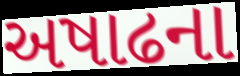
અષાઢના